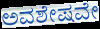
ಅವಶೇಷವೇ